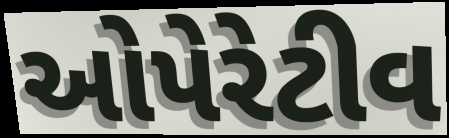
ઓપેરેટીવ